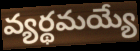
వ్యర్థమయ్యే